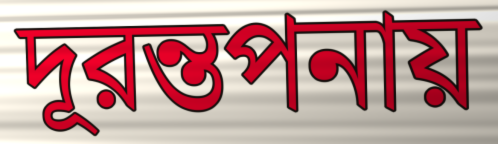
দূরন্তপনায়